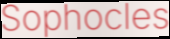
Sophocles